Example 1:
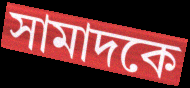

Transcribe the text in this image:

সামাদকে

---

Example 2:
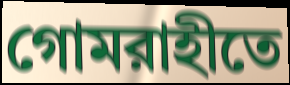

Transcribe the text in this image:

গোমরাহীতে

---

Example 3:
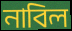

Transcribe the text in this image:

নাবিল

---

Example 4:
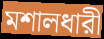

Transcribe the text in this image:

মশালধারী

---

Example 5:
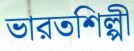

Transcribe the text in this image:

ভারতশিল্পী